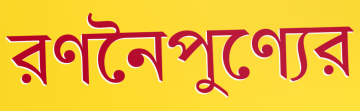
রণনৈপুণ্যের